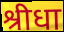
श्रीधा